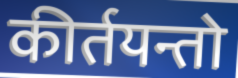
कीर्तयन्तो